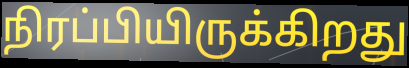
நிரப்பியிருக்கிறது